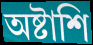
অষ্টাশি